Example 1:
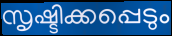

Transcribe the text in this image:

സൃഷ്ടിക്കപ്പെടും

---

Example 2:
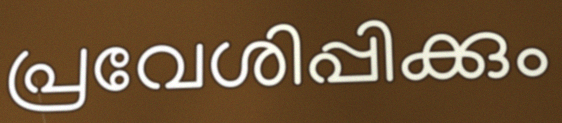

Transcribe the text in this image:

പ്രവേശിപ്പിക്കും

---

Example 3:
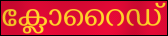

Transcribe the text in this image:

ക്ലോറൈഡ്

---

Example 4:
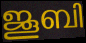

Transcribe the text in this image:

ജൂബി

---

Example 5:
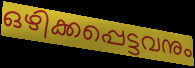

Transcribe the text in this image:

ഒഴിക്കപ്പെട്ടവനും